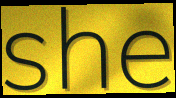
she